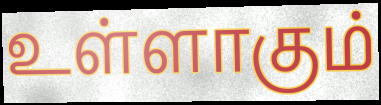
உள்ளாகும்